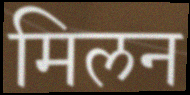
मिलन